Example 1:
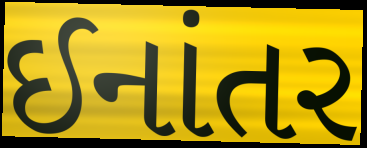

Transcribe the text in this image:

ઈનાંતર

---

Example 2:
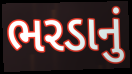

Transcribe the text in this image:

ભરડાનું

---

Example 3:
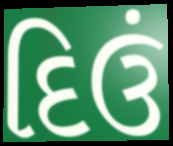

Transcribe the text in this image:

દિઉં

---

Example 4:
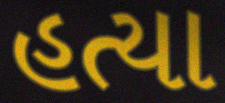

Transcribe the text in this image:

હત્યા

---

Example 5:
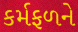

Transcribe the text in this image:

કર્મફળને